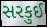
સરકુઈ